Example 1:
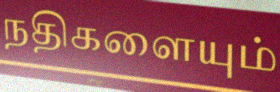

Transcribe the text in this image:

நதிகளையும்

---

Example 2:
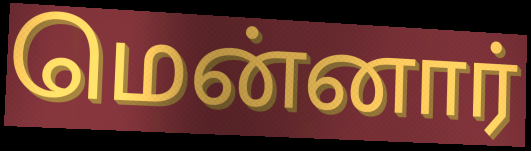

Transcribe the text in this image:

மென்னார்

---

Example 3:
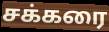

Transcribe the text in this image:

சக்கரை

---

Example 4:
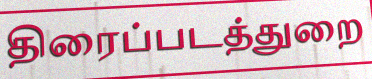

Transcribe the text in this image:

திரைப்படத்துறை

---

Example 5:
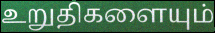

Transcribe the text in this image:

உறுதிகளையும்